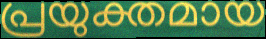
പ്രയുക്തമായ